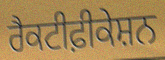
ਰੈਕਟੀਫ਼ੀਕੇਸ਼ਨ